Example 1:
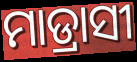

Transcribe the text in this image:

ମାଡ୍ରାସୀ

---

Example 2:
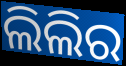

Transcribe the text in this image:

ଲିଲିର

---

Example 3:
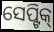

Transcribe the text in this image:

ସେପ୍ଟିକ୍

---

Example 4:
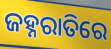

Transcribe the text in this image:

ଜହ୍ନରାତିରେ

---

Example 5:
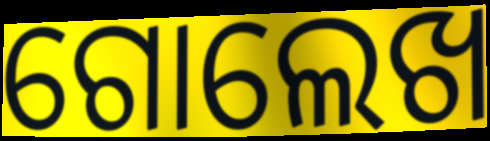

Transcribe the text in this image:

ଗୋଲେଖ